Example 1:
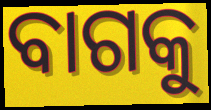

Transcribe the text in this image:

ବାଗକୁ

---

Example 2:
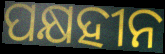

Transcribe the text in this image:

ପକ୍ଷହୀନ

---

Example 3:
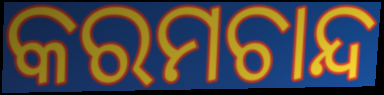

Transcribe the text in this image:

କରମଚାନ୍ଦ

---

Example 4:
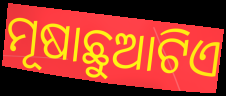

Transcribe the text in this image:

ମୂଷାଛୁଆଟିଏ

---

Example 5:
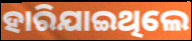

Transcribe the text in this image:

ହାରିଯାଇଥିଲେ